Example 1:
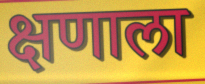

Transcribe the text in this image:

क्षणाला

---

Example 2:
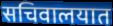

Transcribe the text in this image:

सचिवालयात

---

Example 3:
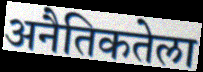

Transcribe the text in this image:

अनैतिकतेला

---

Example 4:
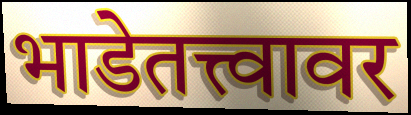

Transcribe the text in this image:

भाडेतत्त्वावर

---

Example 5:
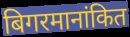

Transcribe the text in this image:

बिगरमानांकित